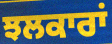
ਝਲਕਾਰਾਂ